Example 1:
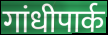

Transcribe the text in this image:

गांधीपार्क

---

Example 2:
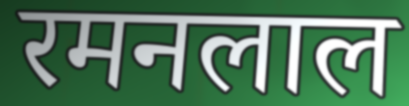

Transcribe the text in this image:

रमनलाल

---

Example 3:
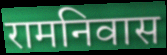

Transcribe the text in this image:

रामनिवास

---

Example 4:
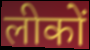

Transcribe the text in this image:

लीकों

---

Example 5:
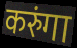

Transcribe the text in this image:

करुंगा